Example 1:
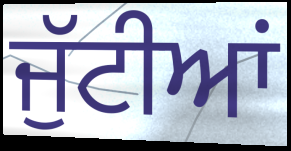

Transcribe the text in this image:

ਜੁੱਟੀਆਂ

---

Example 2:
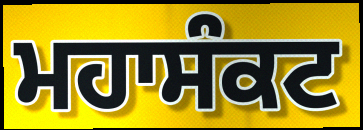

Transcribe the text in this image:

ਮਹਾਸੰਕਟ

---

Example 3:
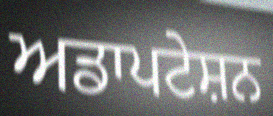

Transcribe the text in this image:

ਅਡਾਪਟੇਸ਼ਨ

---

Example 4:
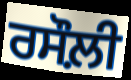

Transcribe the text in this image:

ਰਸੌਲ਼ੀ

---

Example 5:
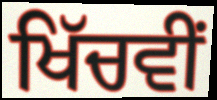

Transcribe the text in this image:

ਖਿੱਚਵੀਂ